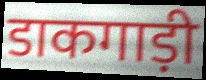
डाकगाड़ी